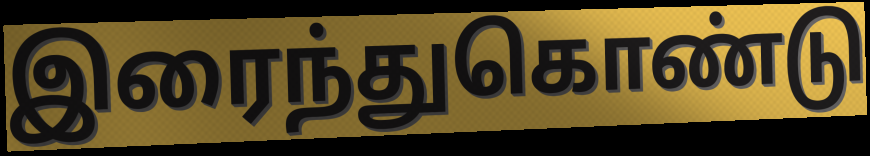
இரைந்துகொண்டு